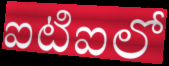
ఐటిఐలో